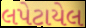
લપેટાયેલ